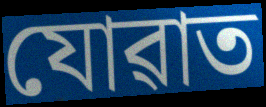
যোৱাত